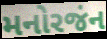
મનોરજંન